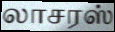
லாசரஸ்